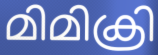
മിമിക്രി